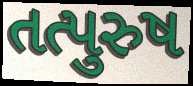
તત્પુરુષ